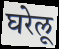
घरेलू